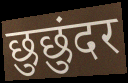
छुछुंदर